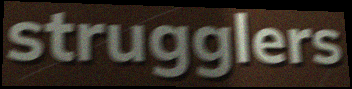
strugglers